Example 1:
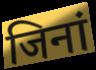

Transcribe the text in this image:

जिनां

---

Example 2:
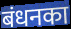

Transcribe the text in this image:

बंधनका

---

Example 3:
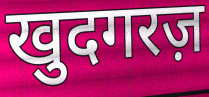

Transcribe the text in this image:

खुदगरज़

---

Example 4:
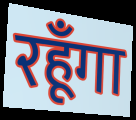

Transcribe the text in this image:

रहूँगा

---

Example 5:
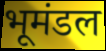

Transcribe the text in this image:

भूमंडल